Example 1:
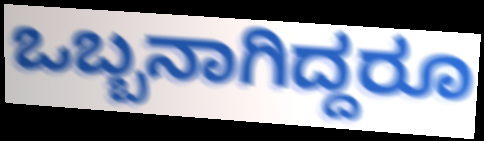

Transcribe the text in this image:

ಒಬ್ಬನಾಗಿದ್ದರೂ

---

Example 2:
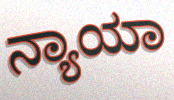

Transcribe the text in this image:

ನ್ಯಾಯಾ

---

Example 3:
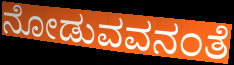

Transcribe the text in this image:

ನೋಡುವವನಂತೆ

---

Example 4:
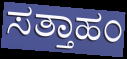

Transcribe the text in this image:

ಸತ್ತಾಹಂ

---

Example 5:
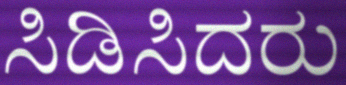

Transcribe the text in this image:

ಸಿಡಿಸಿದರು